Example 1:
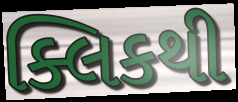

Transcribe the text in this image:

ક્લિકથી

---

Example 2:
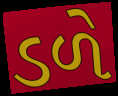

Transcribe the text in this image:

ડળે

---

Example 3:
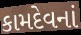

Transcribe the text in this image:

કામદેવનાં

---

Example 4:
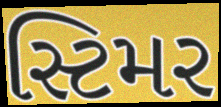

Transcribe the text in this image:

સ્ટિમર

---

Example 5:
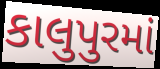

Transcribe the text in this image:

કાલુપુરમાં